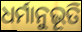
ଧର୍ମାନୁଭୂତି